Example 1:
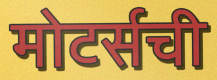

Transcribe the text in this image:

मोटर्सची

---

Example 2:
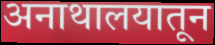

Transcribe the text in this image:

अनाथालयातून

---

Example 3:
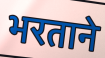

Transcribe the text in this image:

भरताने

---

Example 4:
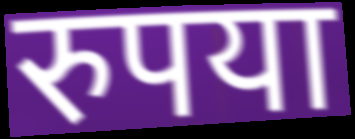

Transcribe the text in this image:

रुपया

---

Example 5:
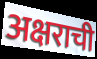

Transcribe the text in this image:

अक्षराची